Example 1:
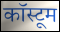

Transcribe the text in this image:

कॉस्टूम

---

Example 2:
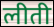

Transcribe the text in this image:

लीती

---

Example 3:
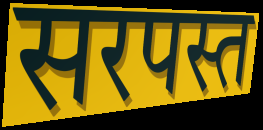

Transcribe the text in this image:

सरपस्त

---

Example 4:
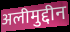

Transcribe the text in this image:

अलीमुद्दीन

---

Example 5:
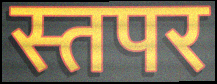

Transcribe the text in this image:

स्तपर